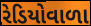
રેડિયોવાળા